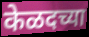
केळदच्या